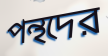
পন্থদের